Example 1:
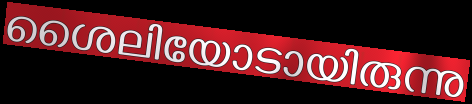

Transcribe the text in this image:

ശൈലിയോടായിരുന്നു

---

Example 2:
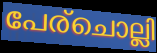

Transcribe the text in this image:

പേര്ചൊല്ലി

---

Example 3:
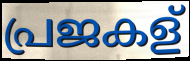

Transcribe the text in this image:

പ്രജകള്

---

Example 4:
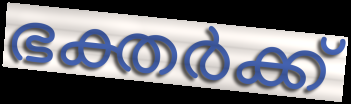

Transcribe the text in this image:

ഭക്തർക്ക്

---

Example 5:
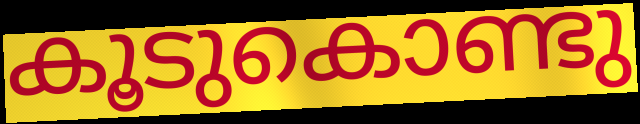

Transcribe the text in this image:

കൂടുകൊണ്ടു